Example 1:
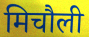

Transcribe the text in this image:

मिचौली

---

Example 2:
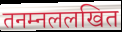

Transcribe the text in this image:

तनम्नललखित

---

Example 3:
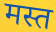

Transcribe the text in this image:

मस्त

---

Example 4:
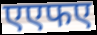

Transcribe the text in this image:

एएफए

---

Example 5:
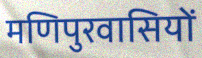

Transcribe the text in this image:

मणिपुरवासियों